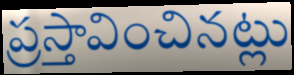
ప్రస్తావించినట్లు